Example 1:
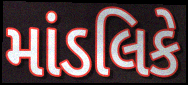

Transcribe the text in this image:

માંડલિકે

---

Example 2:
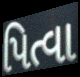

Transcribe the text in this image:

પિત્વા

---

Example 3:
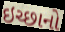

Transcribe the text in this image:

ઇચ્છાનો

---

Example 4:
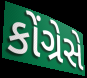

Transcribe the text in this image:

કોંગ્રેસે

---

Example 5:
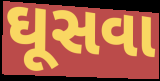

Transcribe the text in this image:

ઘૂસવા